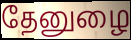
தேனுழை